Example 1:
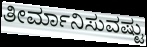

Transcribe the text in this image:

ತೀರ್ಮಾನಿಸುವಷ್ಟು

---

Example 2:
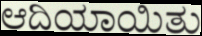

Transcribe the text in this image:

ಆದಿಯಾಯಿತು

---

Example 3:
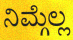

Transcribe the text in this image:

ನಿಮ್ಗೆಲ್ಲ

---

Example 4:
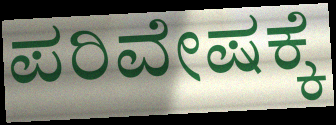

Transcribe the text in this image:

ಪರಿವೇಷಕ್ಕೆ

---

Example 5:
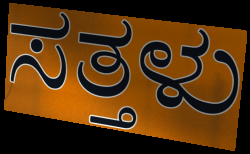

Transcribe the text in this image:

ಸತ್ತಳು